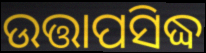
ଉତ୍ତାପସିଦ୍ଧ